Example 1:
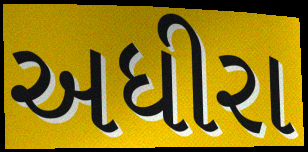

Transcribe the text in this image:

અધીરા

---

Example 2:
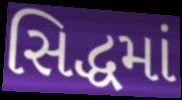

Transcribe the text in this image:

સિદ્ધમાં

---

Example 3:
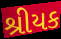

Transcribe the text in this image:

શ્રીયક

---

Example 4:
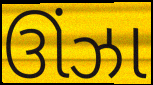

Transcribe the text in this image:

ઊંઝા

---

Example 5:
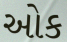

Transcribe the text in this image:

ઓક